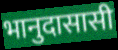
भानुदासासी